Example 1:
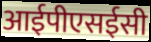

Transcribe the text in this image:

आईपीएसईसी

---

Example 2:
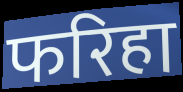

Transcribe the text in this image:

फरिहा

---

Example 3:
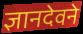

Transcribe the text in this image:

ज्ञानदेवने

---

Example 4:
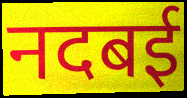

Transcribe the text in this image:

नदबई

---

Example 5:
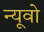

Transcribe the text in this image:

न्यूवो